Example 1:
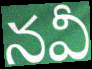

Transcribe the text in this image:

నవీ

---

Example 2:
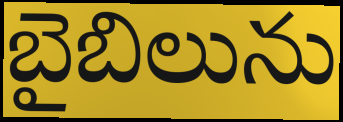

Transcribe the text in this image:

బైబిలును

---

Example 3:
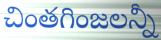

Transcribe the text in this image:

చింతగింజలన్నీ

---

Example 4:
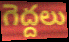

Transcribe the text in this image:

గెద్దలు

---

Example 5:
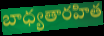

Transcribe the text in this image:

బాధ్యతారహిత